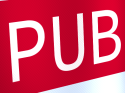
PUB